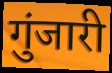
गुंजारी